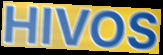
HIVOS